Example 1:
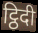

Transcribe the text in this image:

ट्ठिदी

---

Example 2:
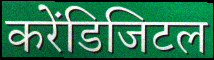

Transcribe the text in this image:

करेंडिजिटल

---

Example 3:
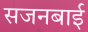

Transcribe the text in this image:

सजनबाई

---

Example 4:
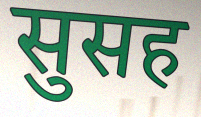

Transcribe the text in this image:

सुसह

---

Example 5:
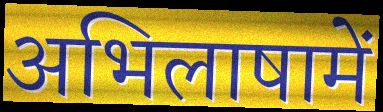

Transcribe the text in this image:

अभिलाषामें